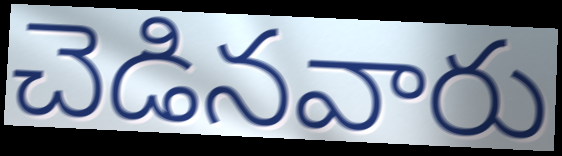
చెడినవారు